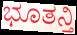
ಭೂತನ್ತಿ